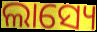
ଲାସ୍ୟେ